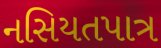
નસિયતપાત્ર